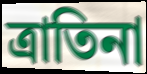
ত্রাতিনা